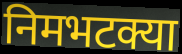
निमभटक्या